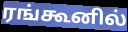
ரங்கூனில்